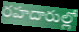
రహదారుల్లో